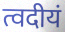
त्वदीयं